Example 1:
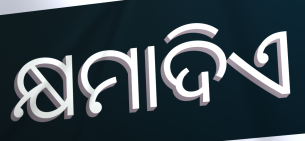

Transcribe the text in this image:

କ୍ଷମାଦିଏ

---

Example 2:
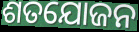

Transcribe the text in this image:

ଶତଯୋଜନ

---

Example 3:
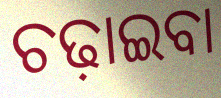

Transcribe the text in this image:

ଚଢ଼ାଇବା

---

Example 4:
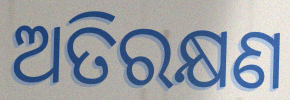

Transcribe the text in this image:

ଅତିରକ୍ଷଣ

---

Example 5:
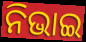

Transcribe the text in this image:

ନିଭାଇ